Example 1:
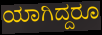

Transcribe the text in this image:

ಯಾಗಿದ್ದರೂ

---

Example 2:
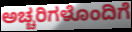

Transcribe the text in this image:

ಅಚ್ಚರಿಗಳೊಂದಿಗೆ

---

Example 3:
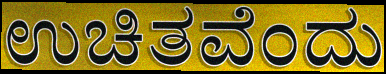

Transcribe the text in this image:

ಉಚಿತವೆಂದು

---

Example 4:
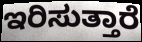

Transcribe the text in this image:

ಇರಿಸುತ್ತಾರೆ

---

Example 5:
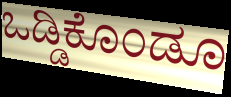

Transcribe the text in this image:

ಒಡ್ಡಿಕೊಂಡೂ